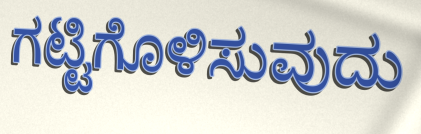
ಗಟ್ಟಿಗೊಳಿಸುವುದು